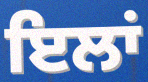
ਇਲਾਂ